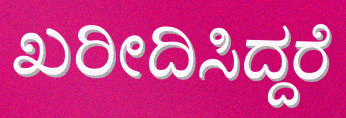
ಖರೀದಿಸಿದ್ದರೆ